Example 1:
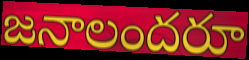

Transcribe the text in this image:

జనాలందరూ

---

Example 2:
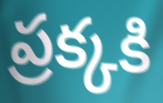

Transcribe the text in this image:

ప్రక్కకి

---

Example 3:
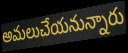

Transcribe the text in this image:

అమలుచేయనున్నారు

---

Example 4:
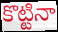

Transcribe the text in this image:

కొట్టినా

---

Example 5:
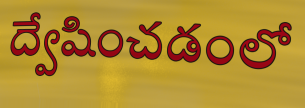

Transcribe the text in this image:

ద్వేషించడంలో